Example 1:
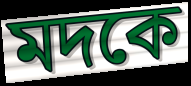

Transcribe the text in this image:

মদকে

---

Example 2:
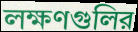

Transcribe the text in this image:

লক্ষণগুলির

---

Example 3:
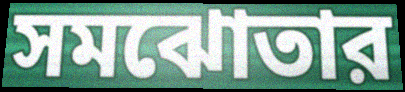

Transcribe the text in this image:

সমঝোতার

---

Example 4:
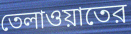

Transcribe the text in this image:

তেলাওয়াতের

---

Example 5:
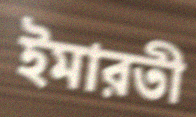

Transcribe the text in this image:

ইমারতী